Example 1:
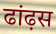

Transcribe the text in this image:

ढांढ़स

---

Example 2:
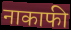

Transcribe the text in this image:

नाकाफी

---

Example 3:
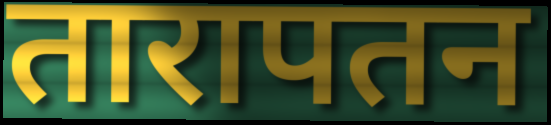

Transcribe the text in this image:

तारापतन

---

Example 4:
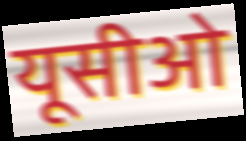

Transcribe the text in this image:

यूसीओ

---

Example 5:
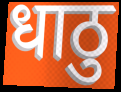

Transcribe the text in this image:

धाठु